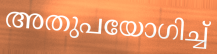
അതുപയോഗിച്ച്